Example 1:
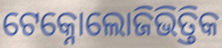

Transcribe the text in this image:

ଟେକ୍ନୋଲୋଜିଭିତ୍ତିକ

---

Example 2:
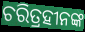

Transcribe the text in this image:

ଚରିତ୍ରହୀନଙ୍କ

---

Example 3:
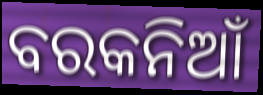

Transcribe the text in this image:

ବରକନିଆଁ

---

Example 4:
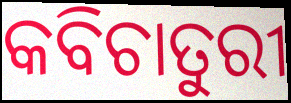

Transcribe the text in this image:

କବିଚାତୁରୀ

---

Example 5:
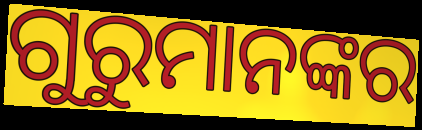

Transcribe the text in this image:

ଗୁରୁମାନଙ୍କର